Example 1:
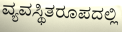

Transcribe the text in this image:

ವ್ಯವಸ್ಥಿತರೂಪದಲ್ಲಿ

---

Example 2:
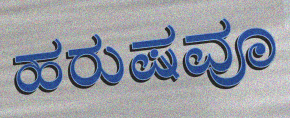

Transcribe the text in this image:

ಹರುಷವೂ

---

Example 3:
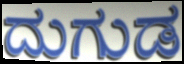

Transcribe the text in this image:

ದುಗುಡ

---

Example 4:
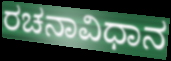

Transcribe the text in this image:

ರಚನಾವಿಧಾನ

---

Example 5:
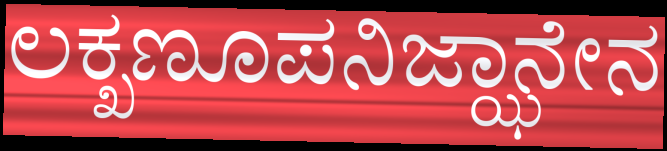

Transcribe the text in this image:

ಲಕ್ಖಣೂಪನಿಜ್ಝಾನೇನ